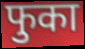
फुका